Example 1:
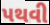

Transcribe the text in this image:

પથવી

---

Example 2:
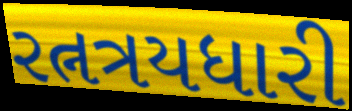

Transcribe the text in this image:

રત્નત્રયધારી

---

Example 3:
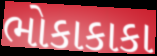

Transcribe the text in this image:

ભોકાકાકા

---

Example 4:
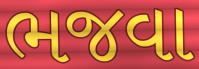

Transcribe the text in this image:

ભજવા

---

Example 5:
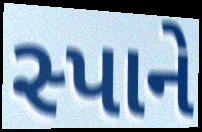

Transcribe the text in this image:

સ્પાને